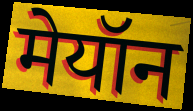
मेयॉन